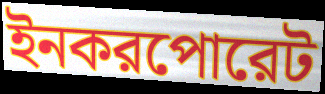
ইনকরপোরেট